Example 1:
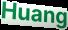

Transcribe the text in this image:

Huang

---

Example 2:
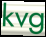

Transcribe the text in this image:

kvg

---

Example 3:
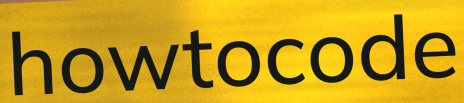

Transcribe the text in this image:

howtocode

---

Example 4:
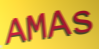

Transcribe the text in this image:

AMAs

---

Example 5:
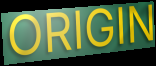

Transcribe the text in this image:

ORIGIN